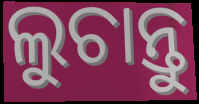
ଲୁଚାନ୍ତୁ